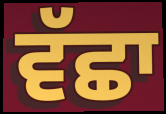
ਵੱਛਾ